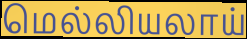
மெல்லியலாய்